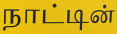
நாட்டின்